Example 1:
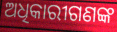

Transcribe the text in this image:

ଅଧିକାରୀଗଣଙ୍କ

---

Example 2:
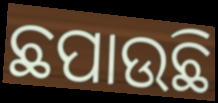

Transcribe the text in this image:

ଛପାଉଛି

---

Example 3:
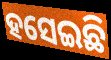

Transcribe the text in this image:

ହସେଇଛି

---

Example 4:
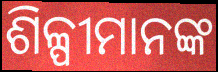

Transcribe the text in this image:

ଶିଳ୍ପୀମାନଙ୍କ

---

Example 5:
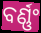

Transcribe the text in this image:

ବର୍ଣ୍ଣଂ